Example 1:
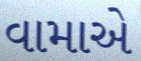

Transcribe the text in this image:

વામાએ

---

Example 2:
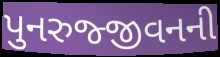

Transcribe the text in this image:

પુનરુજ્જીવનની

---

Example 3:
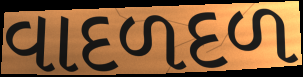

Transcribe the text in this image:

વાદળદળ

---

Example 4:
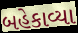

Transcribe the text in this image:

બહેકાવ્યા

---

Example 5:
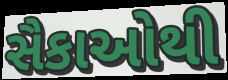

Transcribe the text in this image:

સૈકાઓથી